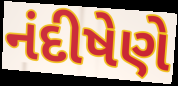
નંદીષેણે